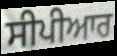
ਸੀਪੀਆਰ